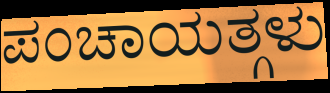
ಪಂಚಾಯತ್ಗಳು